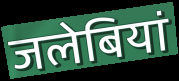
जलेबियां